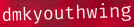
dmkyouthwing